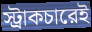
স্ট্রাকচারেই